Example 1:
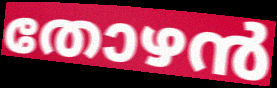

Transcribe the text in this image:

തോഴൻ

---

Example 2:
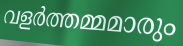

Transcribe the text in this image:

വളർത്തമ്മമാരും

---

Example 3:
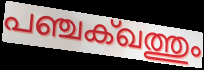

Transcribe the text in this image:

പഞ്ചക്ഖത്തും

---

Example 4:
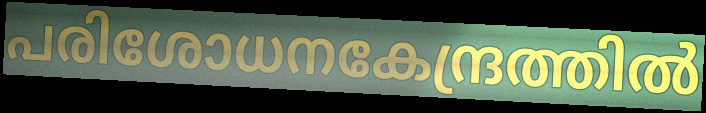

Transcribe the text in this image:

പരിശോധനകേന്ദ്രത്തിൽ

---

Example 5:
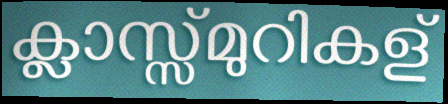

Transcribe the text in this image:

ക്ലാസ്സ്മുറികള്